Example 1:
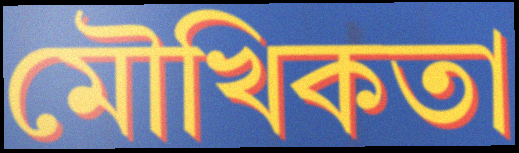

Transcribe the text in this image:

মৌখিকতা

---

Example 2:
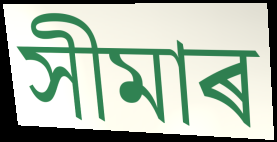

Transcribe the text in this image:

সীমাৰ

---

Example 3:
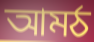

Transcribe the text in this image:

আমঠ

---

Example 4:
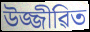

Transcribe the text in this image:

উজ্জীৱিত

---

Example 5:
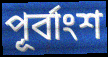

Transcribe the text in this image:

পূৰ্বাংশ